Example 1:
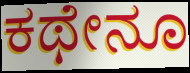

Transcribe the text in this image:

ಕಥೇನೂ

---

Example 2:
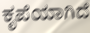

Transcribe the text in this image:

ಕೃಪೆಯಾಗಿದೆ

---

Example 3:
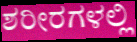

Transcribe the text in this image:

ಶರೀರಗಳಲ್ಲಿ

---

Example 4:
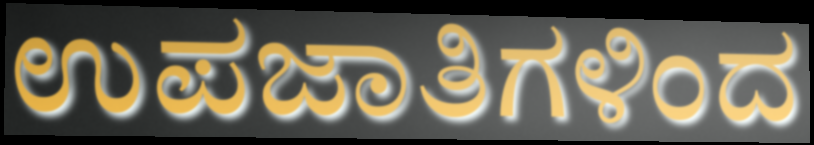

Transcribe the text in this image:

ಉಪಜಾತಿಗಳಿಂದ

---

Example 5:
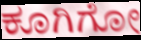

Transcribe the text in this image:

ಕೂಗಿಗೋ